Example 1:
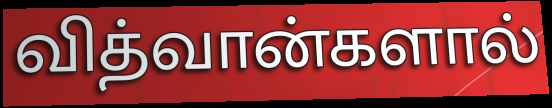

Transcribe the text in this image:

வித்வான்களால்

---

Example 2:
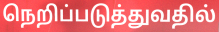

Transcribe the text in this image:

நெறிப்படுத்துவதில்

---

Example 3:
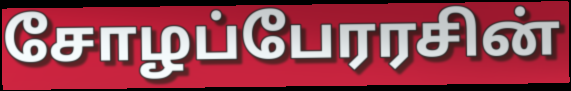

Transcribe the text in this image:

சோழப்பேரரசின்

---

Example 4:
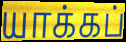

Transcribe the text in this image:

யாக்கப்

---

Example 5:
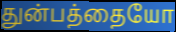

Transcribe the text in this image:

துன்பத்தையோ